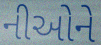
નીઓને